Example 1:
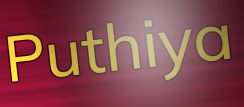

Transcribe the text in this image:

Puthiya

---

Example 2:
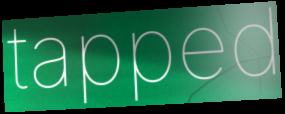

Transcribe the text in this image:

tapped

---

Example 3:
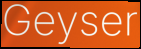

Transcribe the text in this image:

Geyser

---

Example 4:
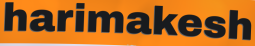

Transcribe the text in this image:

harimakesh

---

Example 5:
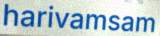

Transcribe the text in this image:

harivamsam